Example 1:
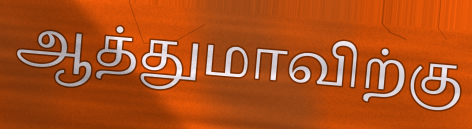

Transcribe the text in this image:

ஆத்துமாவிற்கு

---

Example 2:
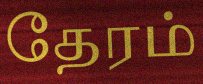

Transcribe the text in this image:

தேரம்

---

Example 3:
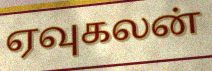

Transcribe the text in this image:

ஏவுகலன்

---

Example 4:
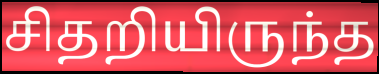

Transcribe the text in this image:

சிதறியிருந்த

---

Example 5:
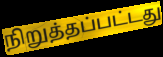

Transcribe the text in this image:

நிறுத்தப்பட்டது